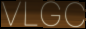
VLGC